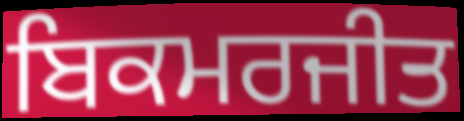
ਬਿਕਮਰਜੀਤ